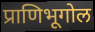
प्राणिभूगोल